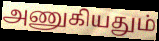
அணுகியதும்